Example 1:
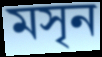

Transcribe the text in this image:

মসৃন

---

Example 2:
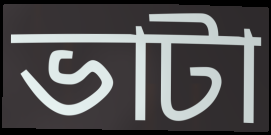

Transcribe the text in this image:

ভাটা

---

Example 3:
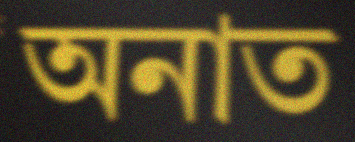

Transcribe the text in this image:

অনাত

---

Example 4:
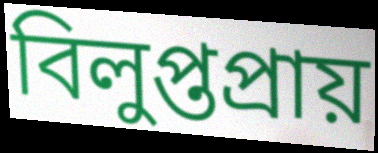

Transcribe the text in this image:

বিলুপ্তপ্ৰায়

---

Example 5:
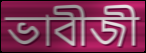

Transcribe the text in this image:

ভাবীজী